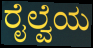
ರೈಲ್ವೆಯ